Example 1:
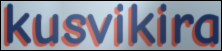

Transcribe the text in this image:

kusvikira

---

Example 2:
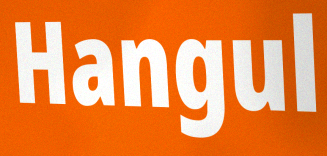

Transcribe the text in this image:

Hangul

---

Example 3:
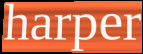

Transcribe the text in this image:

harper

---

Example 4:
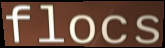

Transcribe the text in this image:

flocs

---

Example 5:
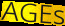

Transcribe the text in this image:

AGEs